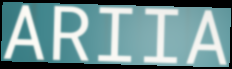
ARIIA